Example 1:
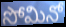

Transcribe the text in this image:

సోమినో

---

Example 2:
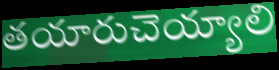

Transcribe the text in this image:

తయారుచెయ్యాలి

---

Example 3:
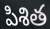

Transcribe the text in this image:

పిశిత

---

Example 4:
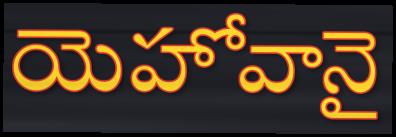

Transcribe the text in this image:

యెహోవానై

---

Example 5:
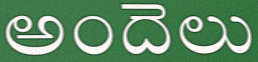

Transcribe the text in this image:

అందెలు